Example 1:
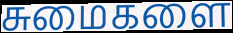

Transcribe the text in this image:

சுமைகளை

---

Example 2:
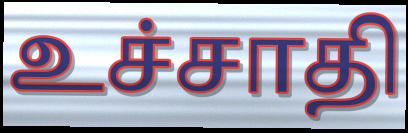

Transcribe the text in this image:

உச்சாதி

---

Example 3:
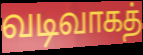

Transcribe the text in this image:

வடிவாகத்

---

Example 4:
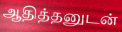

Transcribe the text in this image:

ஆதித்தனுடன்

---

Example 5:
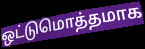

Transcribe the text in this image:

ஒட்டுமொத்தமாக